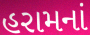
હરામનાં